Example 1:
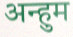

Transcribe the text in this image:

अन्हुम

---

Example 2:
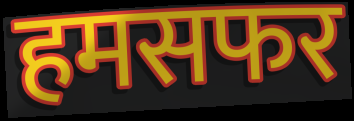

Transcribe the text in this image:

हमसफर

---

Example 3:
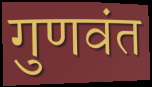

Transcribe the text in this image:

गुणवंत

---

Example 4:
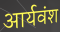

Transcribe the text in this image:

आर्यवंश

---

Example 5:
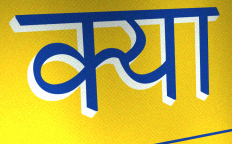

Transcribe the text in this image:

क्या